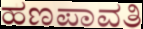
ಹಣಪಾವತಿ